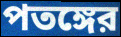
পতঙ্গের